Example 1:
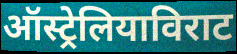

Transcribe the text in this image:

ऑस्ट्रेलियाविराट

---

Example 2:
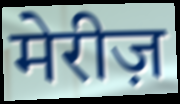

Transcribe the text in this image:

मेरीज़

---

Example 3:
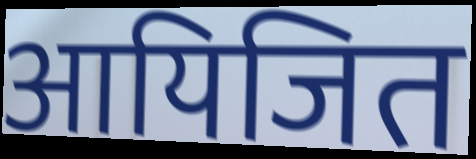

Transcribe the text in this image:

आयिजित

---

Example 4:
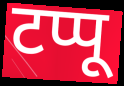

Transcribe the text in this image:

टप्पू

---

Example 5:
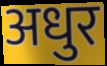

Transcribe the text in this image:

अधुर